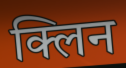
क्लिन